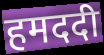
हमददी